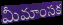
మీమాంసక